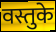
वस्तुके